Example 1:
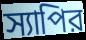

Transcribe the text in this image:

স্যাপির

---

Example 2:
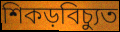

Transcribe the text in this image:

শিকড়বিচ্যুত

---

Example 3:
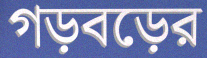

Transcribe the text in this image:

গড়বড়ের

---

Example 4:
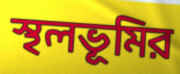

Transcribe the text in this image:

স্থলভূমির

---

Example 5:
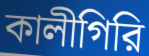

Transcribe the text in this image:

কালীগিরি